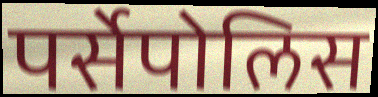
पर्सेपोलिस